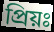
প্রিয়ঃ